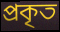
প্রকৃত